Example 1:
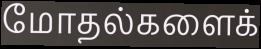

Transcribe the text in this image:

மோதல்களைக்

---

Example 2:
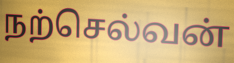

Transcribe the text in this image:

நற்செல்வன்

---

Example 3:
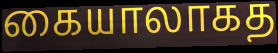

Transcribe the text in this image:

கையாலாகத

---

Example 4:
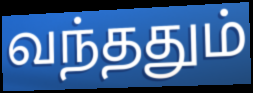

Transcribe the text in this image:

வந்ததும்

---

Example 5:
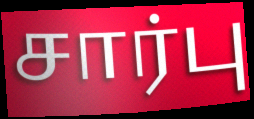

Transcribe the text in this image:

சார்பு